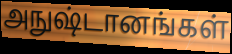
அநுஷ்டானங்கள்